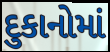
દુકાનોમાં